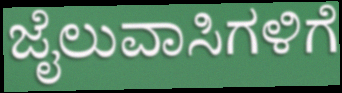
ಜೈಲುವಾಸಿಗಳಿಗೆ